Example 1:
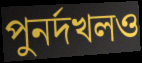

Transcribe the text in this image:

পুনর্দখলও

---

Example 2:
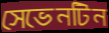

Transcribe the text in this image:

সেভেনটিন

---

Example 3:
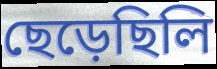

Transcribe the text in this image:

ছেড়েছিলি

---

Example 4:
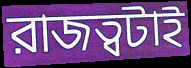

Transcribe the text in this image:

রাজত্বটাই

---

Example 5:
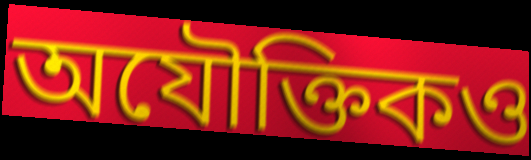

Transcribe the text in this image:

অযৌক্তিকও